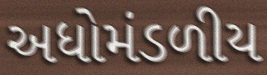
અધોમંડળીય